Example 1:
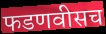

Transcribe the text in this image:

फडणवीसच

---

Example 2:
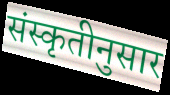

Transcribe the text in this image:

संस्कृतीनुसार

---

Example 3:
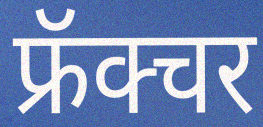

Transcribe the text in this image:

फ्रॅक्चर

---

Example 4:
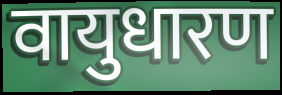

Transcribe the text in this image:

वायुधारण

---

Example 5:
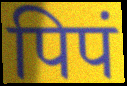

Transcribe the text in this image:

पिपं